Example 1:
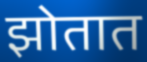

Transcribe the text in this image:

झोतात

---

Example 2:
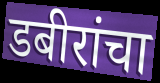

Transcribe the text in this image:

डबीरांचा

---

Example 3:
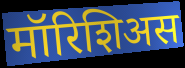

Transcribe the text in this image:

मॉरिशिअस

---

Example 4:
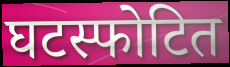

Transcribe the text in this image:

घटस्फोटित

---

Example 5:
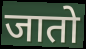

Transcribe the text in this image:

जातो